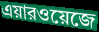
এয়ারওয়েজে